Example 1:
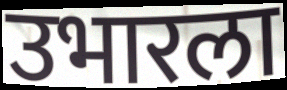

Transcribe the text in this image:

उभारला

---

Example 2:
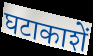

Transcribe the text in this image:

घटाकाशें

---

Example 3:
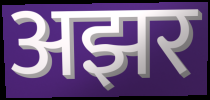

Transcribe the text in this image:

अझर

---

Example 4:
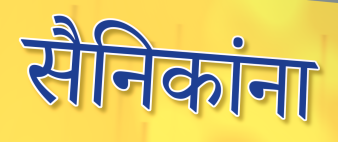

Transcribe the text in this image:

सैनिकांना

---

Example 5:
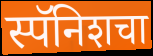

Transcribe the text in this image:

स्पॅनिशचा